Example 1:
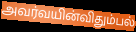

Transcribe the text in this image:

அவர்வயின்விதும்பல்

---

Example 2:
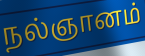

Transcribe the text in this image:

நல்ஞானம்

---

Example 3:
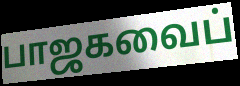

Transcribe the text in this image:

பாஜகவைப்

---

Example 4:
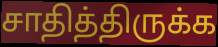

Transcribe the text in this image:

சாதித்திருக்க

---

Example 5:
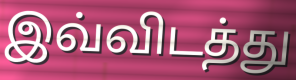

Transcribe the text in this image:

இவ்விடத்து